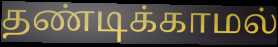
தண்டிக்காமல்